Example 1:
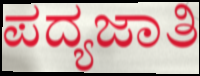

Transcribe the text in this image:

ಪದ್ಯಜಾತಿ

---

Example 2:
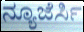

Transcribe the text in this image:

ನ್ಯೂಜೆರ್ಸಿ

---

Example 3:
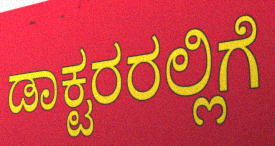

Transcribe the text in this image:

ಡಾಕ್ಟರರಲ್ಲಿಗೆ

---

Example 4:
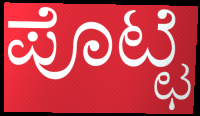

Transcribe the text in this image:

ಪೊಟ್ಟೆ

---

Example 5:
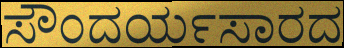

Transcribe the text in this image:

ಸೌಂದರ್ಯಸಾರದ